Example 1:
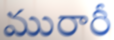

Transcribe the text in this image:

మురారీ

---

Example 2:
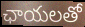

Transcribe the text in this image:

ఛాయలతో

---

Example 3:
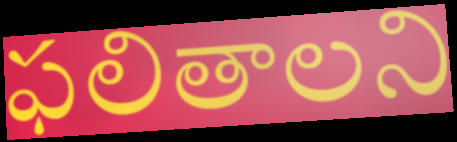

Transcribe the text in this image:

ఫలితాలని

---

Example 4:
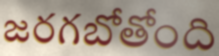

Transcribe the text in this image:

జరగబోతోంది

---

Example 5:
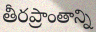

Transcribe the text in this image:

తీరప్రాంతాన్ని